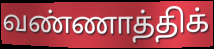
வண்ணாத்திக்